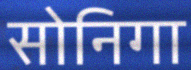
सोनिगा